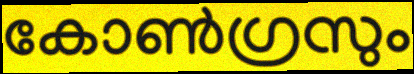
കോൺഗ്രസും